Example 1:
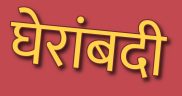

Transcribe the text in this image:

घेरांबदी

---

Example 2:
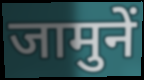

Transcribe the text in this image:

जामुनें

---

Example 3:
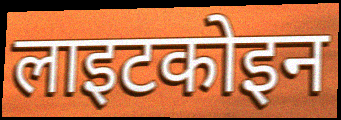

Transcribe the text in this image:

लाइटकोइन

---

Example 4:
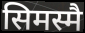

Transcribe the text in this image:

सिमस्मै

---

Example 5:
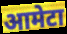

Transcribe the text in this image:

आमेटा